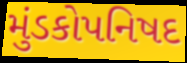
મુંડકોપનિષદ